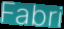
Fabri